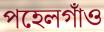
পহেলগাঁও